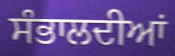
ਸੰਭਾਲਦੀਆਂ